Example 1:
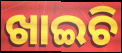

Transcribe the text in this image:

ଖାଇଚି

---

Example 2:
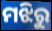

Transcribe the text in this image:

ମଝିରୁ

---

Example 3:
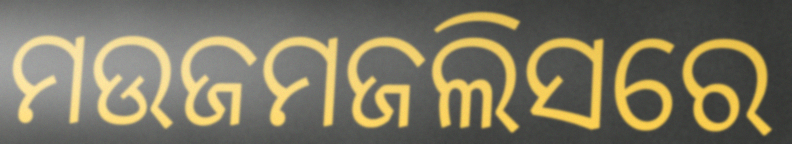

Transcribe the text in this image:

ମଉଜମଜଲିସରେ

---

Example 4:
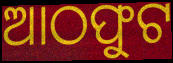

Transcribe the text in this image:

ଆଠଫୁଟ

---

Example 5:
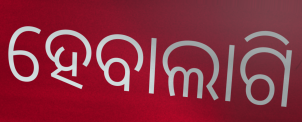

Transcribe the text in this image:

ହେବାଲାଗି